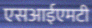
एसआईएमटी